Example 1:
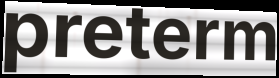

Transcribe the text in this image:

preterm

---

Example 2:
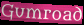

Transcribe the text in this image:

Gumroad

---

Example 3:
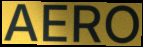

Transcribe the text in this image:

AERO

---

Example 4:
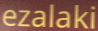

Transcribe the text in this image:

ezalaki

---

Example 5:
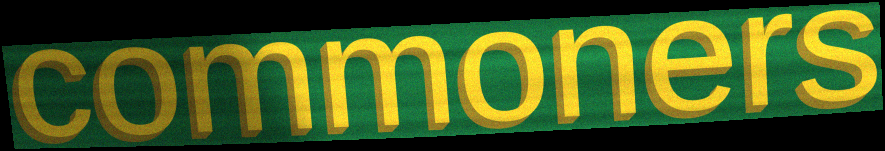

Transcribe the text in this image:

commoners